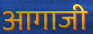
आगाजी